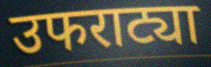
उफराट्या